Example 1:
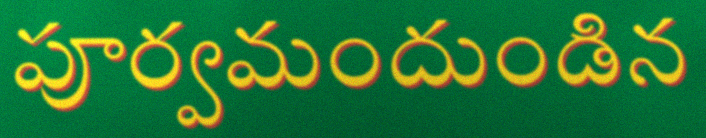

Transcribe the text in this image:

పూర్వమందుండిన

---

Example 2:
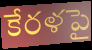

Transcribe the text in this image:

కేరళపై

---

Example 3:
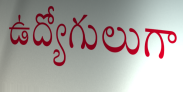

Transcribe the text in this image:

ఉద్యోగులుగా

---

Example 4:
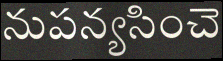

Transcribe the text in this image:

నుపన్యసించె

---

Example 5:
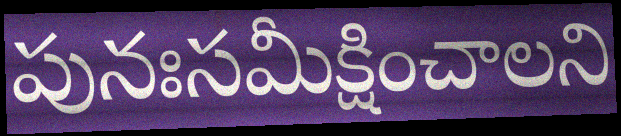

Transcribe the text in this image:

పునఃసమీక్షించాలని